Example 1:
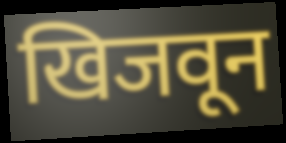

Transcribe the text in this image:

खिजवून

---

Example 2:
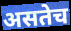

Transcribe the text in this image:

असतेच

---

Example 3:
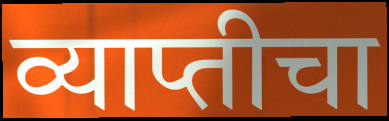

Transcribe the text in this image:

व्याप्तीचा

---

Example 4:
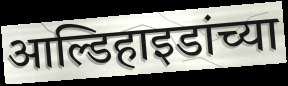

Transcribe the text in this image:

आल्डिहाइडांच्या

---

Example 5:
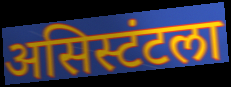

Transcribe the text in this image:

असिस्टंटला